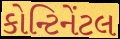
કોન્ટિનેંટલ